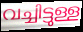
വച്ചിട്ടുള്ള